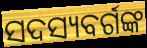
ସଦସ୍ୟବର୍ଗଙ୍କ